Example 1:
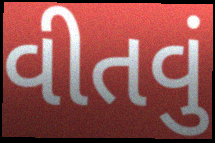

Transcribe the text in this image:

વીતવું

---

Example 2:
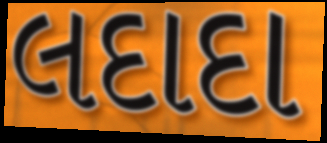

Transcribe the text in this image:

લદાદા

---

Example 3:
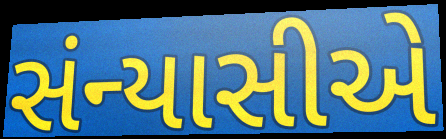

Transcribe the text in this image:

સંન્યાસીએ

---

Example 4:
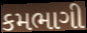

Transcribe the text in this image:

કમભાગી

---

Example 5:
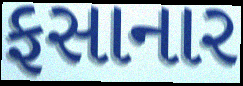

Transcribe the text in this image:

ફસાનાર